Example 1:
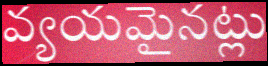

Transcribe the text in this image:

వ్యయమైనట్లు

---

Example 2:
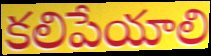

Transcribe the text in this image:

కలిపేయాలి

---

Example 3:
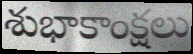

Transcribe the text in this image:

శుభాకాంక్షలు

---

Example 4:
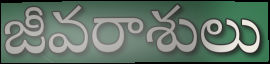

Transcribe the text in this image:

జీవరాశులు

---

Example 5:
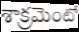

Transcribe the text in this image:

శాక్రమెంటో